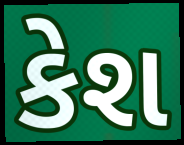
કેશ